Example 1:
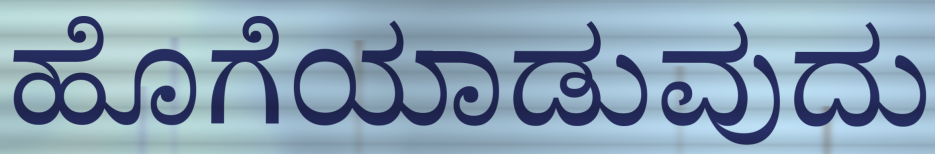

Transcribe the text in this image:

ಹೊಗೆಯಾಡುವುದು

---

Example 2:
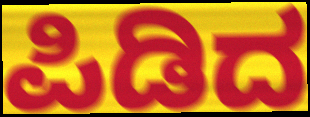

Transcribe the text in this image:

ಪಿಡಿದ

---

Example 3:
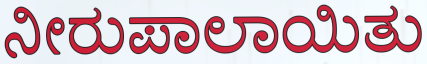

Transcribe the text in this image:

ನೀರುಪಾಲಾಯಿತು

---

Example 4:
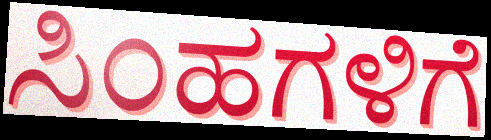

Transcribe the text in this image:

ಸಿಂಹಗಳಿಗೆ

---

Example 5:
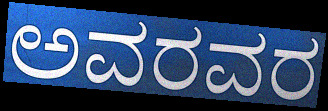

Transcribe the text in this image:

ಅವರವರ